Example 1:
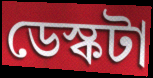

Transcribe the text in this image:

ডেস্কটা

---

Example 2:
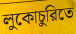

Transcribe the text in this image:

লুকোচুরিতে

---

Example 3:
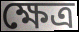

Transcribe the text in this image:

ক্ষেত্র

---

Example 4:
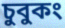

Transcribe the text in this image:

চুবুকং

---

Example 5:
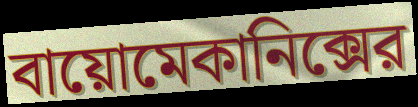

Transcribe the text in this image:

বায়োমেকানিক্সের